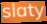
slaty